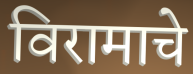
विरामाचे